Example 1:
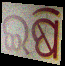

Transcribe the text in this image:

ଇଷି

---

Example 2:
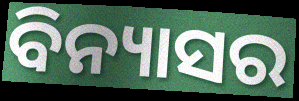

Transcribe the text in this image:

ବିନ୍ୟାସର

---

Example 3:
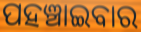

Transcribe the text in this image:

ପହଞ୍ଚାଇବାର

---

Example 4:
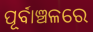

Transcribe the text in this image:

ପୂର୍ବାଞ୍ଚଳରେ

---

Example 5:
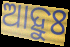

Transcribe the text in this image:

ଆହୁଃ